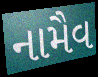
નામૈવ